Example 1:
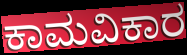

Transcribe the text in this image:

ಕಾಮವಿಕಾರ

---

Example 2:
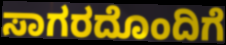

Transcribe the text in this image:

ಸಾಗರದೊಂದಿಗೆ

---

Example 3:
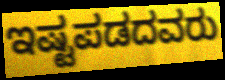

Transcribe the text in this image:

ಇಷ್ಟಪಡದವರು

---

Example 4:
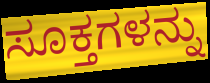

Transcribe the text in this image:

ಸೂಕ್ತಗಳನ್ನು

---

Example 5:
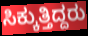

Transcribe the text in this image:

ಸಿಕ್ಕುತ್ತಿದ್ದರು